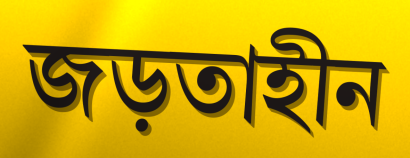
জড়তাহীন